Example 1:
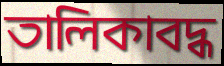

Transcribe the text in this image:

তালিকাবদ্ধ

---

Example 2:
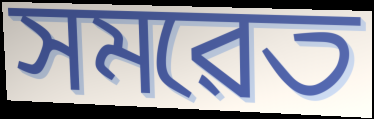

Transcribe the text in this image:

সমৱেত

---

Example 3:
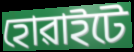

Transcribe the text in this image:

হোৱাইটে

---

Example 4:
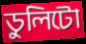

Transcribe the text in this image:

ডুলিটো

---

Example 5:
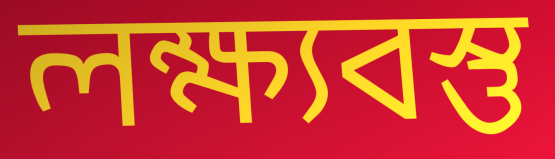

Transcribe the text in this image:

লক্ষ্যবস্তু